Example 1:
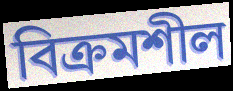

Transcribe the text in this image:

বিক্রমশীল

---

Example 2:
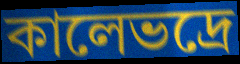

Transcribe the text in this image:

কালেভদ্রে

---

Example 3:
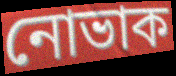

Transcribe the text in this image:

নোভাক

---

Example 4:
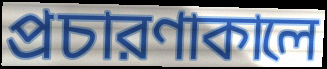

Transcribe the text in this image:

প্রচারণাকালে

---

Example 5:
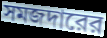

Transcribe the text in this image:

সমজদারের